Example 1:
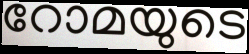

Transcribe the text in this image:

റോമയുടെ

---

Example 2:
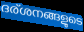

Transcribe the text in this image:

ദര്ശനങ്ങളുടെ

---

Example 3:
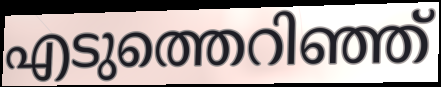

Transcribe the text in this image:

എടുത്തെറിഞ്ഞ്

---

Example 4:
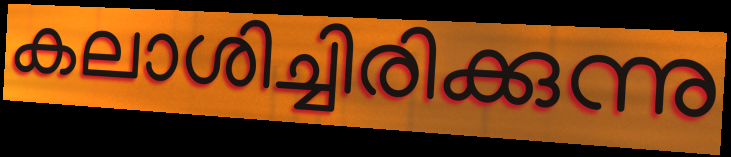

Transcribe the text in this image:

കലാശിച്ചിരിക്കുന്നു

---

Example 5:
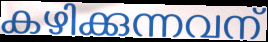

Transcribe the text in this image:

കഴിക്കുന്നവന്